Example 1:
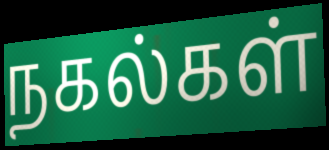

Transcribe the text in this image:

நகல்கள்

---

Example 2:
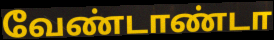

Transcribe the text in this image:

வேண்டாண்டா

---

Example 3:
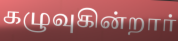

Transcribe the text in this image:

கழுவுகின்றார்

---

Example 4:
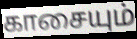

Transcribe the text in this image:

காசையும்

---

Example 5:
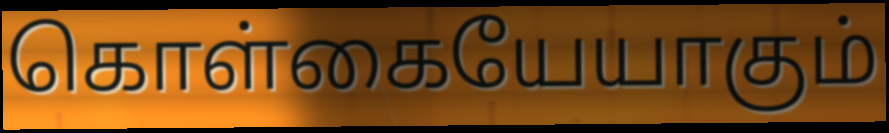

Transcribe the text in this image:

கொள்கையேயாகும்